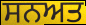
ਸਨਅਤ